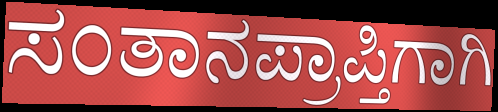
ಸಂತಾನಪ್ರಾಪ್ತಿಗಾಗಿ